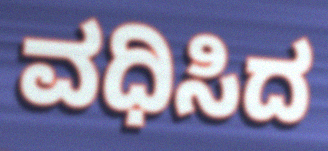
ವಧಿಸಿದ